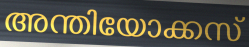
അന്തിയോക്കസ്